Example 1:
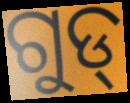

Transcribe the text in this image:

ଗୁଡ୍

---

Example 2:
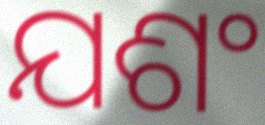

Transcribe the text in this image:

ଯଶଂ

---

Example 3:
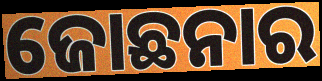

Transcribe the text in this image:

ଜୋଛନାର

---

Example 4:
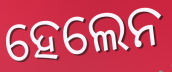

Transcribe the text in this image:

ହେଲେନ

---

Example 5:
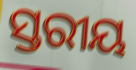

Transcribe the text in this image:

ସ୍ତରୀୟ